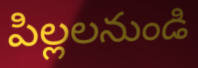
పిల్లలనుండి